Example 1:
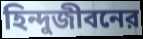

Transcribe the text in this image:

হিন্দুজীবনের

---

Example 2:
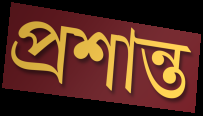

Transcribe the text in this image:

প্রশান্ত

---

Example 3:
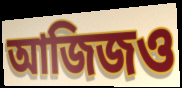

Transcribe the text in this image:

আজিজও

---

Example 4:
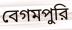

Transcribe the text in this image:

বেগমপুরি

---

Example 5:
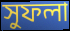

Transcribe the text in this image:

সুফলা